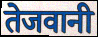
तेजवानी